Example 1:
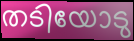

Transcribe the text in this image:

തടിയോടു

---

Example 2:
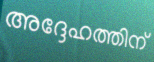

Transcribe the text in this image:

അദ്ദേഹത്തിന്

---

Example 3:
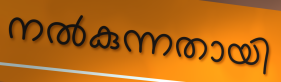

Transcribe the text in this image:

നൽകുന്നതായി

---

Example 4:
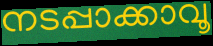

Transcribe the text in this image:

നടപ്പാക്കാവൂ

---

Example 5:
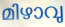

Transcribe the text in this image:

മിഴാവു